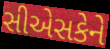
સીએસકેને